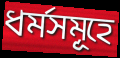
ধর্মসমূহে